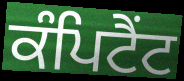
ਕੰਪਿਟੈਂਟ